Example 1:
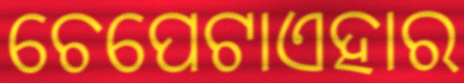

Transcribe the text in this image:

ଚେପେଟାଏହାର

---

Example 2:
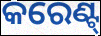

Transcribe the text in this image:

କରେଣ୍ଟ୍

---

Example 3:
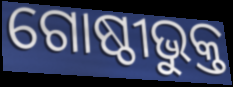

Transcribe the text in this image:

ଗୋଷ୍ଠୀଭୁକ୍ତ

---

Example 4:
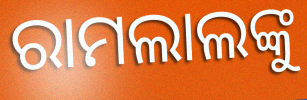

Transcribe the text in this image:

ରାମଲାଲଙ୍କୁ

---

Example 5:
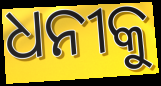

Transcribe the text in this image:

ଧନୀକୁ